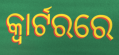
କ୍ବାର୍ଟରରେ